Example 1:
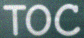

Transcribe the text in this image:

TOC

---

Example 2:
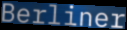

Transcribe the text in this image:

Berliner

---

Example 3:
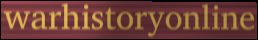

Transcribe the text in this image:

warhistoryonline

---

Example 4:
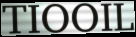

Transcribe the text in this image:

TIOOIL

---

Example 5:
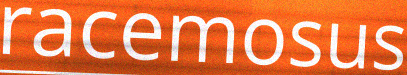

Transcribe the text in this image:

racemosus